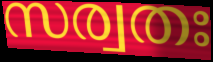
സര്വതഃ